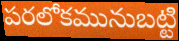
పరలోకమునుబట్టి